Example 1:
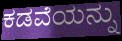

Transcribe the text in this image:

ಕಡವೆಯನ್ನು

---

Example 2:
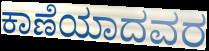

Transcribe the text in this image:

ಕಾಣೆಯಾದವರ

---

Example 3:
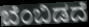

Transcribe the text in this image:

ಬೆಂಬಿಡದೆ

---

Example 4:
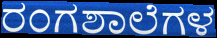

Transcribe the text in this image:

ರಂಗಶಾಲೆಗಳ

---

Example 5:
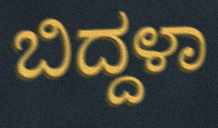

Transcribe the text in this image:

ಬಿದ್ದಳಾ